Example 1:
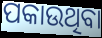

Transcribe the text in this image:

ପକାଉଥିବା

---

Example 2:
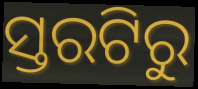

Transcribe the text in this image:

ସ୍ତରଟିରୁ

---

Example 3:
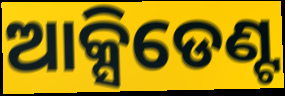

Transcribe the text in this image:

ଆକ୍ସିଡେଣ୍ଟ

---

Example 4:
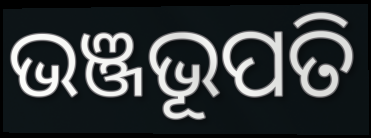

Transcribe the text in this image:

ଭଞ୍ଜଭୂପତି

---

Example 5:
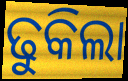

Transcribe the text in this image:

ଢୁକିଲା